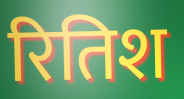
रितिश